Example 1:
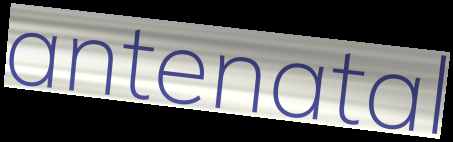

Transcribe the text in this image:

antenatal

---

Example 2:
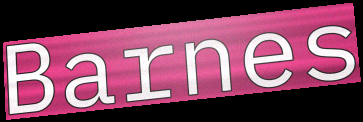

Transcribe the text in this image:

Barnes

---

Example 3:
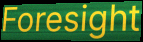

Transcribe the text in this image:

Foresight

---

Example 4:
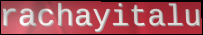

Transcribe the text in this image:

rachayitalu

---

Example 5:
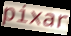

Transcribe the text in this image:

pixar